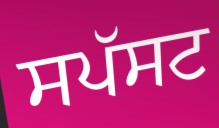
ਸਪੱਸਟ